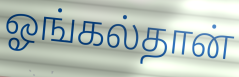
ஓங்கல்தான்